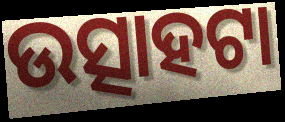
ଉତ୍ସାହଟା